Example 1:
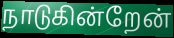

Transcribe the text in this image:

நாடுகின்றேன்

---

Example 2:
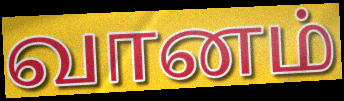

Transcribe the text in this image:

வானம்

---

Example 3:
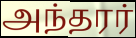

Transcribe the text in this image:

அந்தரர்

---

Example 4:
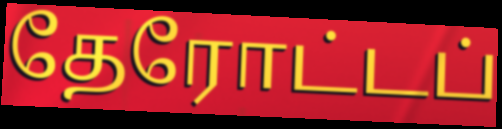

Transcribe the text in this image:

தேரோட்டப்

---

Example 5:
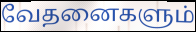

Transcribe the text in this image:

வேதனைகளும்